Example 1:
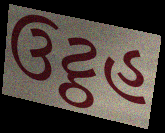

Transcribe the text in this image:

ઉટ્ઠહ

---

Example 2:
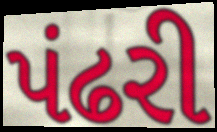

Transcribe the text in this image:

પંઢરી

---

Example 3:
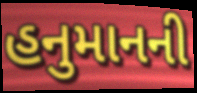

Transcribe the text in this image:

હનુમાનની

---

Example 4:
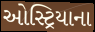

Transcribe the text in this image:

ઓસ્ટ્રિયાના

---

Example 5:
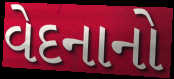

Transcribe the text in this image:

વેદનાનો